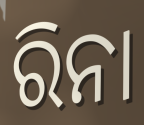
ରିନା